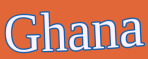
Ghana